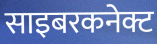
साइबरकनेक्ट